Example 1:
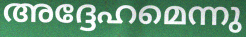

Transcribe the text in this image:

അദ്ദേഹമെന്നു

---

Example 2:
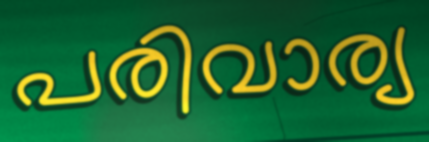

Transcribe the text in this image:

പരിവാര്യ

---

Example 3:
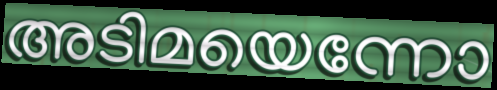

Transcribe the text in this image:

അടിമയെന്നോ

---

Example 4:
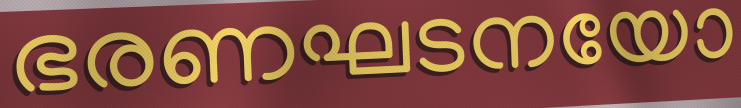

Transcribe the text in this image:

ഭരണഘടനയോ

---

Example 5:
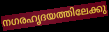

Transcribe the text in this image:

നഗരഹൃദയത്തിലേക്കു